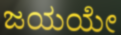
ಜಯಯೇ